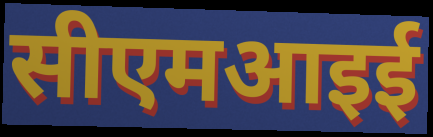
सीएमआइई